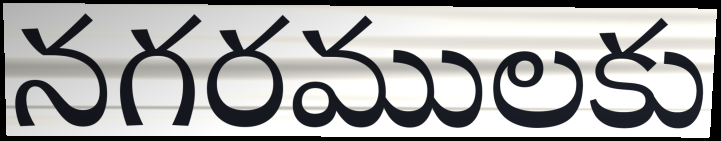
నగరములకు